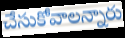
చేసుకోవాలన్నారు